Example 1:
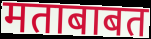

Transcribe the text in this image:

मताबाबत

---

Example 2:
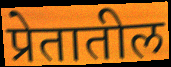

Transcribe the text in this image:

प्रेतातील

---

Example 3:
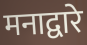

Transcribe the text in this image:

मनाद्वारे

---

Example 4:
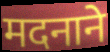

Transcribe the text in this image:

मदनाने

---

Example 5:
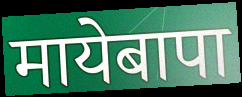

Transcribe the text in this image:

मायेबापा